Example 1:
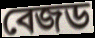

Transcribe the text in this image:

বেজড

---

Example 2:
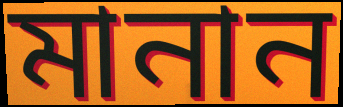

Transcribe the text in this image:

মানান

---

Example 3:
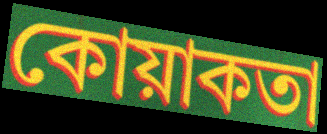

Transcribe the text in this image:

কোয়াকতা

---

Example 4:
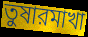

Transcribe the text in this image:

তুষারমাখা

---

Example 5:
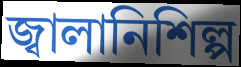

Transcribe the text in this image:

জ্বালানিশিল্প